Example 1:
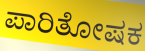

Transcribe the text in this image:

ಪಾರಿತೋಷಕ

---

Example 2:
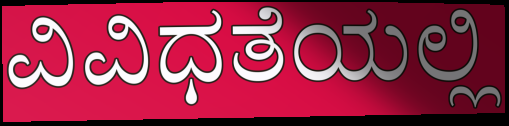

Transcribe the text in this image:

ವಿವಿಧತೆಯಲ್ಲಿ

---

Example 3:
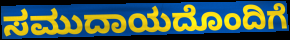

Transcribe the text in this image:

ಸಮುದಾಯದೊಂದಿಗೆ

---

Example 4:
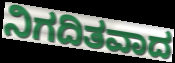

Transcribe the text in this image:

ನಿಗದಿತವಾದ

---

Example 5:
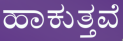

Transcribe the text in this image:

ಹಾಕುತ್ತವೆ